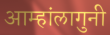
आम्हांलागुनी